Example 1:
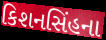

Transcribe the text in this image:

કિશનસિંહના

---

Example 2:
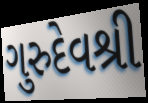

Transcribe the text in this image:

ગુરુદેવશ્રી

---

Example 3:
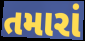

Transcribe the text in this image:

તમારાં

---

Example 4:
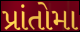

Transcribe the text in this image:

પ્રાંતોમા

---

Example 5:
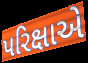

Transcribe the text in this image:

પરિક્ષાએ